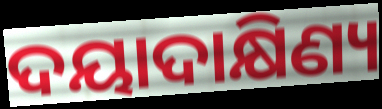
ଦୟାଦାକ୍ଷିଣ୍ୟ